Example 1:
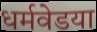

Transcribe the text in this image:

धर्मवेडया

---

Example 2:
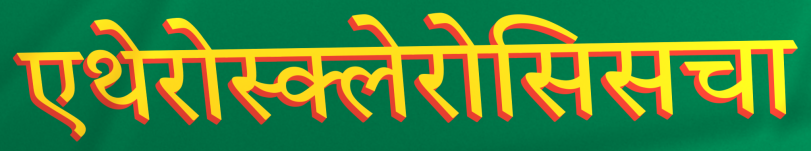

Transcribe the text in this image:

एथेरोस्क्लेरोसिसचा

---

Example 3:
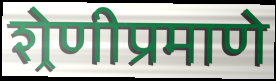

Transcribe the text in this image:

श्रेणीप्रमाणे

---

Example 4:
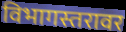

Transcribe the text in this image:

विभागस्तरावर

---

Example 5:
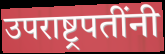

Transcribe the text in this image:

उपराष्ट्रपतींनी